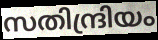
സതിന്ദ്രിയം